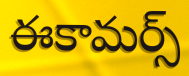
ఈకామర్స్